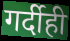
गर्दीही